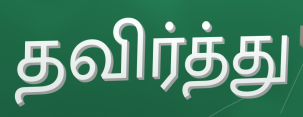
தவிர்த்து